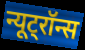
न्यूट्रॉन्स